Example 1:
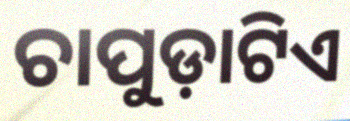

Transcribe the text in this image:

ଚାପୁଡ଼ାଟିଏ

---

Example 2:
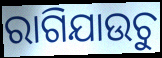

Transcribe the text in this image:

ରାଗିଯାଉଚୁ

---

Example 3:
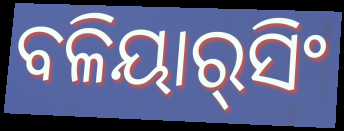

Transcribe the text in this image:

ବଳିୟାର୍‌ସିଂ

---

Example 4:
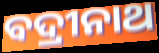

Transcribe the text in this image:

ବଦ୍ରୀନାଥ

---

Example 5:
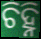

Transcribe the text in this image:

ଚିହ୍ନି